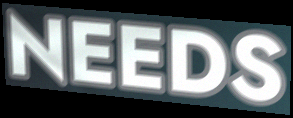
NEEDS